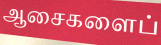
ஆசைகளைப்